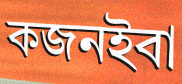
কজনইবা